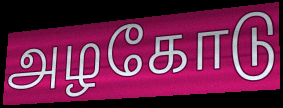
அழகோடு